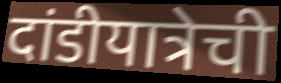
दांडीयात्रेची